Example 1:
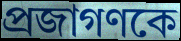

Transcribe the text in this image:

প্রজাগণকে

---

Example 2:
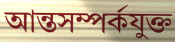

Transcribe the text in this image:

আন্তসম্পর্কযুক্ত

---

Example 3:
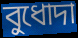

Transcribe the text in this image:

বুধোদা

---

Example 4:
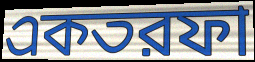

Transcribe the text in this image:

একতরফা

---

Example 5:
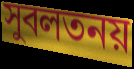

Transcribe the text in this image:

সুবলতনয়